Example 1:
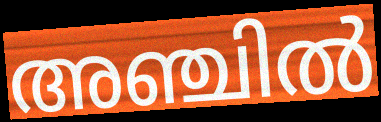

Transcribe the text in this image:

അഞ്ചിൽ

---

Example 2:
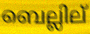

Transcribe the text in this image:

ബെല്ലില്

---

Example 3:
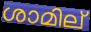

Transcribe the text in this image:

ശാമില്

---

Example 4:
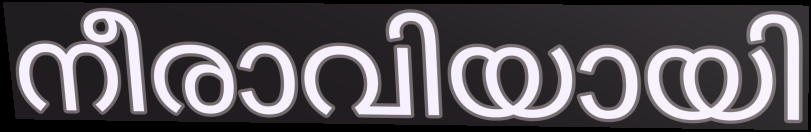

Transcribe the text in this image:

നീരാവിയായി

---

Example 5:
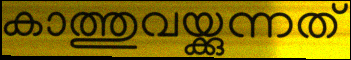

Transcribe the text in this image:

കാത്തുവയ്ക്കുന്നത്